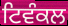
ਟਿਵੰਕਲ